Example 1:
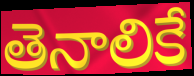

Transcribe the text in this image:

తెనాలికే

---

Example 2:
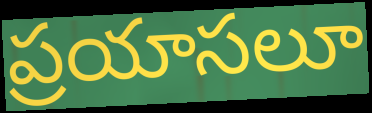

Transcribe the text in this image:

ప్రయాసలూ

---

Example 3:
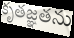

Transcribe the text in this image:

కృతజ్ఞతను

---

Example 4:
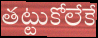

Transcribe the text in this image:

తట్టుకోలేకే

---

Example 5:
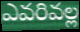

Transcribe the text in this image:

ఎవరివల్ల